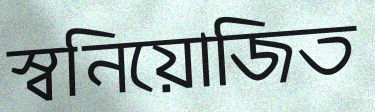
স্বনিয়োজিত